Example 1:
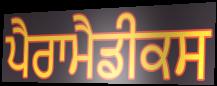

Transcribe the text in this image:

ਪੈਰਾਮੈਡੀਕਸ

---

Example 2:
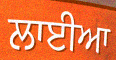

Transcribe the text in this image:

ਲਾਈਆ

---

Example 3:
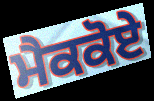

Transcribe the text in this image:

ਮੈਕਕੋਏ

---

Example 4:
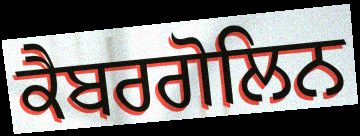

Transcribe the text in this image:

ਕੈਬਰਗੋਲਿਨ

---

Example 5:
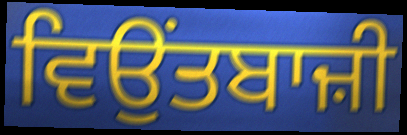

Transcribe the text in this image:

ਵਿਉਂਤਬਾਜ਼ੀ